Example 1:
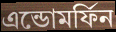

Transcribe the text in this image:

এন্ডোমর্ফিন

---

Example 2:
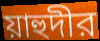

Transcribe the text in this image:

য়াহুদীর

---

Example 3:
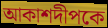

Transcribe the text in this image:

আকাশদীপকে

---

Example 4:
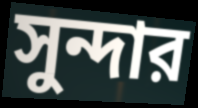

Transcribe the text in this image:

সুন্দার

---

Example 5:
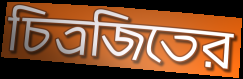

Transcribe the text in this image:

চিত্রজিতের